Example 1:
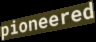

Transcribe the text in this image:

pioneered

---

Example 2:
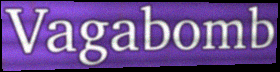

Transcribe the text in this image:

Vagabomb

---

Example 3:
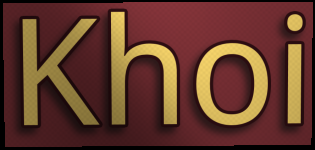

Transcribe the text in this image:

Khoi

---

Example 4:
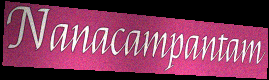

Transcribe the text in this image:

Nanacampantam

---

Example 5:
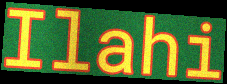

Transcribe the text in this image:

Ilahi